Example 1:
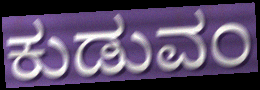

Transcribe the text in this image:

ಕುಡುವಂ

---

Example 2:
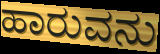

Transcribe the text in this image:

ಹಾರುವನು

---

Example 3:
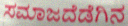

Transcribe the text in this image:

ಸಮಾಜದೆಡೆಗಿನ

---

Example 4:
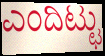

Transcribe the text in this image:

ಎಂದಿಟ್ಟು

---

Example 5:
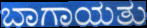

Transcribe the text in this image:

ಬಾಗಾಯತು